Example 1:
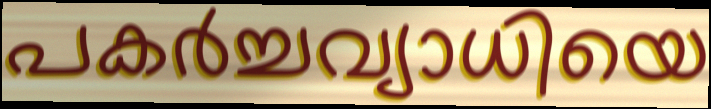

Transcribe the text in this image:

പകർച്ചവ്യാധിയെ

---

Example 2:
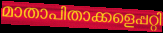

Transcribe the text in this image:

മാതാപിതാക്കളെപ്പറ്റി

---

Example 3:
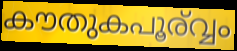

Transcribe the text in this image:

കൗതുകപൂര്വ്വം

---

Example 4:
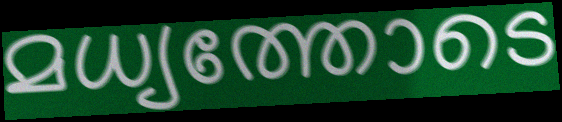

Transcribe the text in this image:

മധ്യത്തോടെ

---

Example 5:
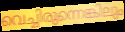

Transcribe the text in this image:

വെച്ചിരുന്നെങ്കിലും